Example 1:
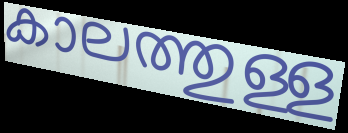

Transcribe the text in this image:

കാലത്തുള്ള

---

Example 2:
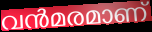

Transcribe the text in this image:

വൻമരമാണ്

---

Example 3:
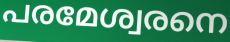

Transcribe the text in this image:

പരമേശ്വരനെ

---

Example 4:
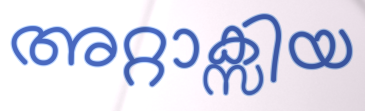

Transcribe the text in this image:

അറ്റാക്സിയ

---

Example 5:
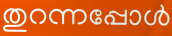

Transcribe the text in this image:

തുറന്നപ്പോൾ